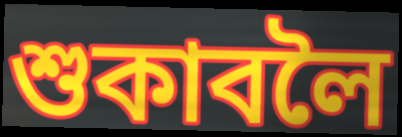
শুকাবলৈ